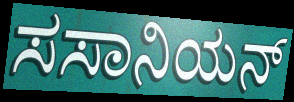
ಸಸಾನಿಯನ್